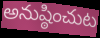
అనుష్ఠించుట